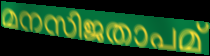
മനസിജതാപമ്